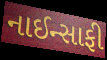
નાઈન્સાફી